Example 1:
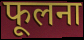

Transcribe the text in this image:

फूलना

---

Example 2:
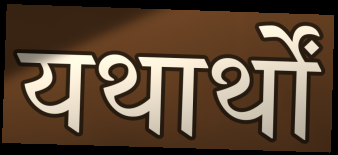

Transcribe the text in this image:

यथार्थों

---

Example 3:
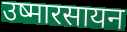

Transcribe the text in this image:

उष्मारसायन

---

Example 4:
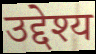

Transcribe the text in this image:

उद्देश्य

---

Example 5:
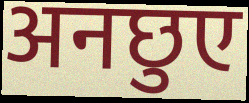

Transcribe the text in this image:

अनछुए